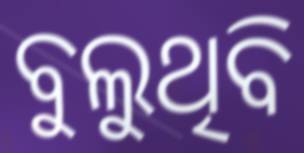
ବୁଲୁଥିବି